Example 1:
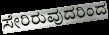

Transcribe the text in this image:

ಸೇರಿರುವುದರಿಂದ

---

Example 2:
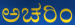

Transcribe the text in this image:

ಅಚರಿಂ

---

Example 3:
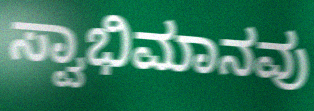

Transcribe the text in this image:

ಸ್ವಾಭಿಮಾನವು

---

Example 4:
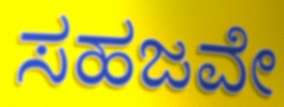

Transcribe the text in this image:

ಸಹಜವೇ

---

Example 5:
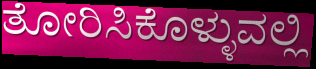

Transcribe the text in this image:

ತೋರಿಸಿಕೊಳ್ಳುವಲ್ಲಿ